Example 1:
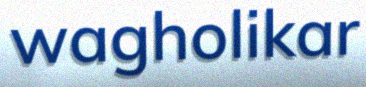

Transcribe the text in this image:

wagholikar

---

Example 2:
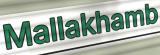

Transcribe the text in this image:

Mallakhamb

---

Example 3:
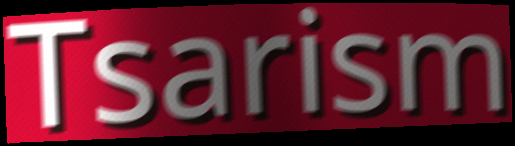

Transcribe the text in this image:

Tsarism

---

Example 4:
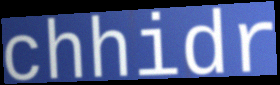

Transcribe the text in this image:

chhidr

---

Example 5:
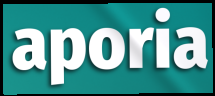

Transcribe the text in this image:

aporia